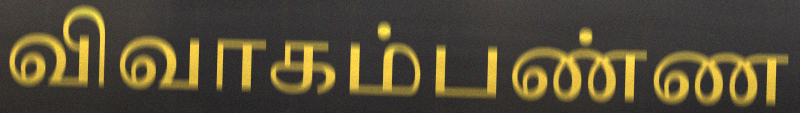
விவாகம்பண்ண